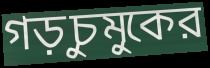
গড়চুমুকের